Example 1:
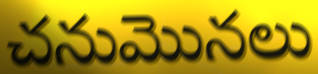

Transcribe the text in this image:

చనుమొనలు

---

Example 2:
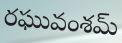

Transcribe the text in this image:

రఘువంశమ్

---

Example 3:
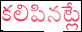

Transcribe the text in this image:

కలిపినట్లే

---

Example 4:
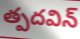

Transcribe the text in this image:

త్పదవిన్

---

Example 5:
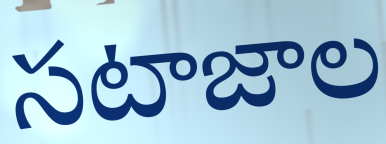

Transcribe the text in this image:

సటాజాల